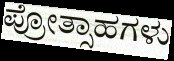
ಪ್ರೋತ್ಸಾಹಗಳು